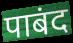
पाबंद